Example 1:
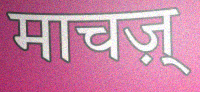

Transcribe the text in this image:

माचज़्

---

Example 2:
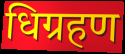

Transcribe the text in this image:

धिग्रहण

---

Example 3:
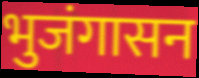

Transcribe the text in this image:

भुजंगासन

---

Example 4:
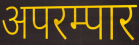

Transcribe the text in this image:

अपरम्पार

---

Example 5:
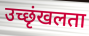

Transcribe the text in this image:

उच्छृंखलता